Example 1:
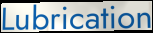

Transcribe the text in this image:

Lubrication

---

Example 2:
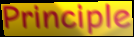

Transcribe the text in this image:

Principle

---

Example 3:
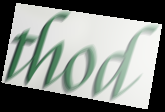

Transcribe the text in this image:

thod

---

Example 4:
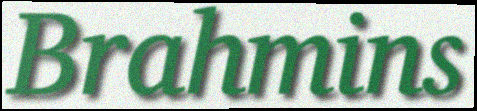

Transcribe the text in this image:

Brahmins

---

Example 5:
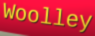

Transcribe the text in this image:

Woolley